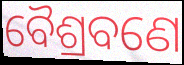
ବୈଶ୍ରବଣେ